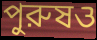
পুরুষও